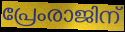
പ്രേംരാജിന്